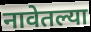
नावेतल्या